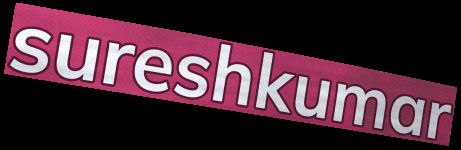
sureshkumar